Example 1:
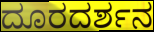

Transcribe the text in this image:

ದೂರದರ್ಶನ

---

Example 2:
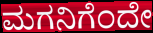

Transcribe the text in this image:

ಮಗನಿಗೆಂದೇ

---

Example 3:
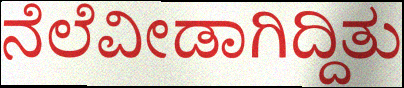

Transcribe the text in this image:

ನೆಲೆವೀಡಾಗಿದ್ದಿತು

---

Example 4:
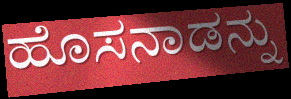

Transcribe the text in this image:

ಹೊಸನಾಡನ್ನು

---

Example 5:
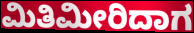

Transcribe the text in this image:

ಮಿತಿಮೀರಿದಾಗ